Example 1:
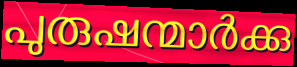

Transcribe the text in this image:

പുരുഷന്മാർക്കു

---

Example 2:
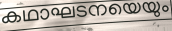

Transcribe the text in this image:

കഥാഘടനയെയും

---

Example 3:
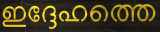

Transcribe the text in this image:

ഇദ്ദേഹത്തെ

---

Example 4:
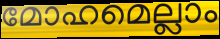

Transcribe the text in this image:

മോഹമെല്ലാം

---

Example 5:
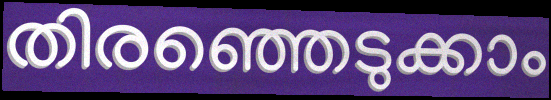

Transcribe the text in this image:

തിരഞ്ഞെടുക്കാം